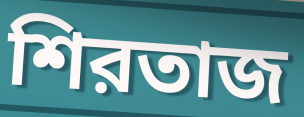
শিরতাজ